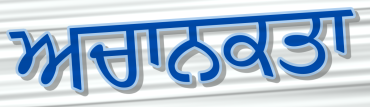
ਅਚਾਨਕਤਾ